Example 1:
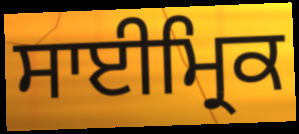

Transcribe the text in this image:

ਸਾਈਮ੍ਰਿਕ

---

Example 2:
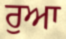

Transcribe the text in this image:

ਰੁਆ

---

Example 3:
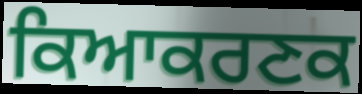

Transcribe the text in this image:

ਕਿਆਕਰਣਕ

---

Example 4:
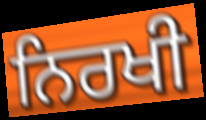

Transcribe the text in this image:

ਨਿਰਖੀ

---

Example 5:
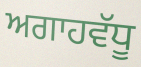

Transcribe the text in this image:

ਅਗਾਹਵੱਧੂ